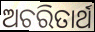
ଅଚରିତାର୍ଥ